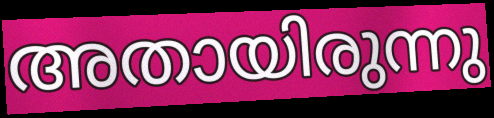
അതായിരുന്നു